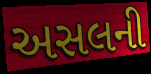
અસલની